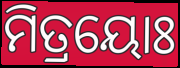
ମିତ୍ରୟୋଃ